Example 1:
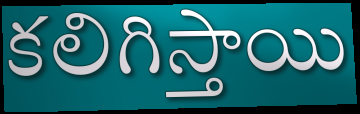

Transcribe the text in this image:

కలిగిస్తాయి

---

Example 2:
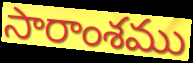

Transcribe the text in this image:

సారాంశము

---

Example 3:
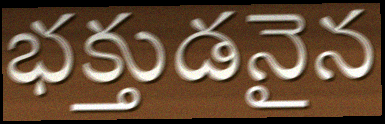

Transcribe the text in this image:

భక్తుడనైన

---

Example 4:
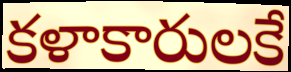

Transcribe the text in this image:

కళాకారులకే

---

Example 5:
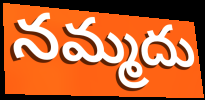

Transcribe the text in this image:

నమ్మదు